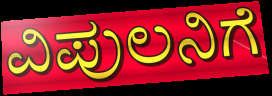
ವಿಪುಲನಿಗೆ